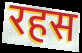
रहस